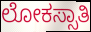
ಲೋಕಸ್ಸಾತಿ